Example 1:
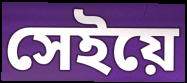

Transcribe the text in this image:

সেইয়ে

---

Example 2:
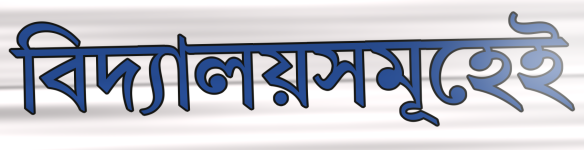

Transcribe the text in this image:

বিদ্যালয়সমূহেই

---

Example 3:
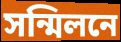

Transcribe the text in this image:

সন্মিলনে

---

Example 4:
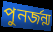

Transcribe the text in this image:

পুনৰ্জন্ম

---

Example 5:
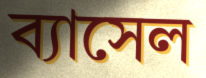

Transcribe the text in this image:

ব্যাসেল